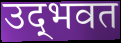
उद्‌भवत